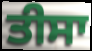
ਤੀਸਾ